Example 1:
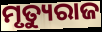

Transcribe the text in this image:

ମୃତ୍ୟୁରାଜ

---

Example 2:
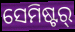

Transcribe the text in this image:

ସେମିଷ୍ଟର୍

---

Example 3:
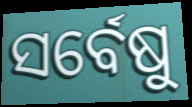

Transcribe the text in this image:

ସର୍ବେଷୁ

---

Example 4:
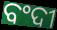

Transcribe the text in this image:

ବଂଦୀ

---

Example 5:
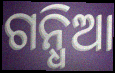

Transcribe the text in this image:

ଗନ୍ଧିଆ